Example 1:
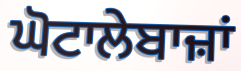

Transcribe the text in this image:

ਘੋਟਾਲੇਬਾਜ਼ਾਂ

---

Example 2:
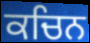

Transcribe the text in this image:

ਕਚਿਨ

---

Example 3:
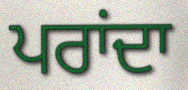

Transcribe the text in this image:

ਪਰਾਂਦਾ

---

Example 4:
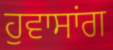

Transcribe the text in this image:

ਹੁਵਾਸਾਂਗ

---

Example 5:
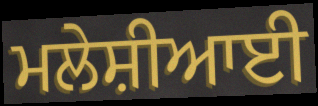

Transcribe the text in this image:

ਮਲੇਸ਼ੀਆਈ